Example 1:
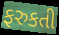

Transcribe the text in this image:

ફરુકતી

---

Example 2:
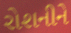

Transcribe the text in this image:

રોશનીને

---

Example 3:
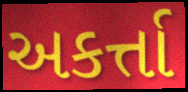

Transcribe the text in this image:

અકર્ત્તા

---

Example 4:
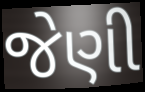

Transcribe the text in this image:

જેણી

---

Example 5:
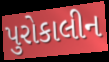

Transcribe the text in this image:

પુરોકાલીન